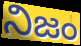
నిజం